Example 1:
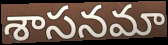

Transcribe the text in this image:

శాసనమా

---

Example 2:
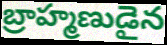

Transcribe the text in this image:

బ్రాహ్మణుడైన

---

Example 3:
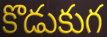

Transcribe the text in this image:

కొడుకుగ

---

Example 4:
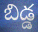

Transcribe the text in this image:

బిడ్డ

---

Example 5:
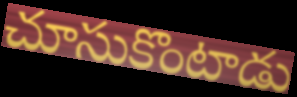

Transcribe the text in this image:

చూసుకొంటాడు